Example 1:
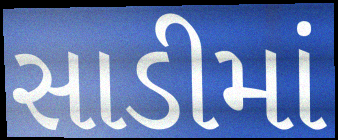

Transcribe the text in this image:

સાડીમાં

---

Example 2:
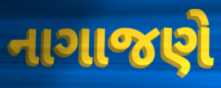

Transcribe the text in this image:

નાગાજણે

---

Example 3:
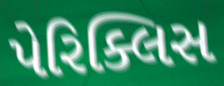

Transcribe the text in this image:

પેરિક્લિસ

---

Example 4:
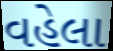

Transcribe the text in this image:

વહેલા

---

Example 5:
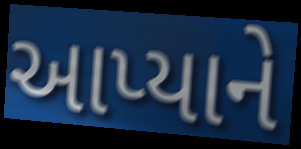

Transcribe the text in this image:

આપ્યાને